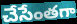
చేసేంతగా